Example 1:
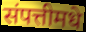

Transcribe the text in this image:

संपत्तीमधे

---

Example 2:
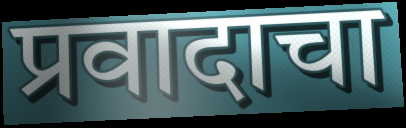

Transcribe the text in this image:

प्रवादाचा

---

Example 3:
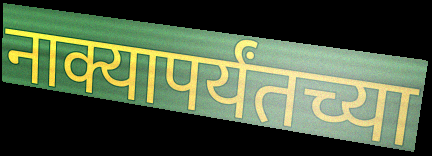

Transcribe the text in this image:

नाक्यापर्यंतच्या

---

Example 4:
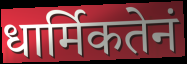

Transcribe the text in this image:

धार्मिकतेनं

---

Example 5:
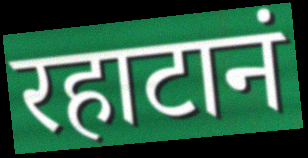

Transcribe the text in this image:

रहाटानं